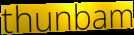
thunbam